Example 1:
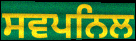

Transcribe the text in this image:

ਸਵਪਨਿਲ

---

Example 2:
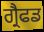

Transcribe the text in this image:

ਗ੍ਰੈਫਡ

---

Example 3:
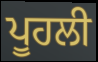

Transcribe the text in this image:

ਪੂਹਲੀ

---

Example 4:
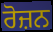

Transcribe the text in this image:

ਰੋਜ਼ਨ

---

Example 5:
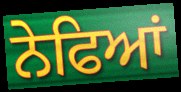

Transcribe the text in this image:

ਨੇਫਿਆਂ